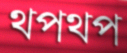
থপথপ